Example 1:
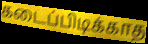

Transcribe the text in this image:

கடைப்பிடிக்காத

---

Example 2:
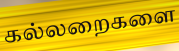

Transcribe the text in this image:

கல்லறைகளை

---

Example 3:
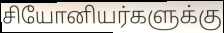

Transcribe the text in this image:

சியோனியர்களுக்கு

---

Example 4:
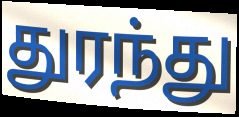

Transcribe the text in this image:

துரந்து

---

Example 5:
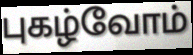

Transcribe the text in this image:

புகழ்வோம்